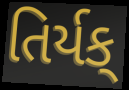
તિર્યક્